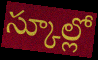
స్కూల్లో